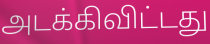
அடக்கிவிட்டது